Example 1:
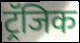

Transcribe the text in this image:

ट्रॅजिक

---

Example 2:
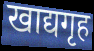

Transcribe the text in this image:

खाद्यगृह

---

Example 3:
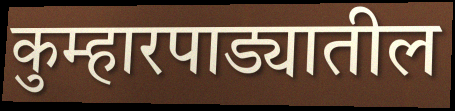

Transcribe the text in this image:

कुम्हारपाड्यातील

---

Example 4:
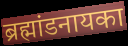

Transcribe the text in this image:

ब्रह्मांडनायका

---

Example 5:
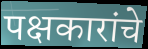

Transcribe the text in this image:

पक्षकारांचे